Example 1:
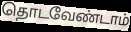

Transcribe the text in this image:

தொடவேண்டாம்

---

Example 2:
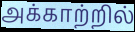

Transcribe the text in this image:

அக்காற்றில்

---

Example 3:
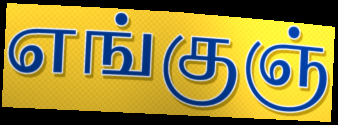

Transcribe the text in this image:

எங்குஞ்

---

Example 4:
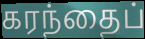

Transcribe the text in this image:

கரந்தைப்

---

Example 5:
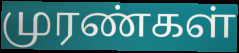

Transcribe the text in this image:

முரண்கள்